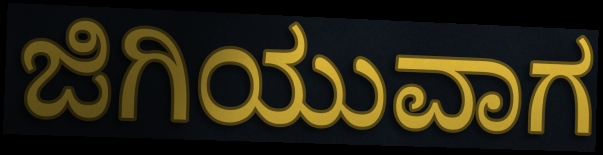
ಜಿಗಿಯುವಾಗ